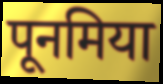
पूनमिया